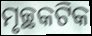
ମୃଚ୍ଛକଟିକ